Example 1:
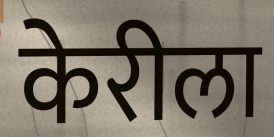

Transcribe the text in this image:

केरीला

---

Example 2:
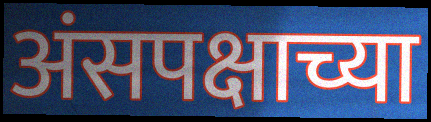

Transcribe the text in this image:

अंसपक्षाच्या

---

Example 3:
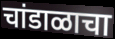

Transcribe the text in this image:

चांडाळाचा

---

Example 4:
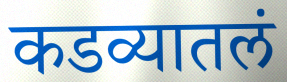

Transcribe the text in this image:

कडव्यातलं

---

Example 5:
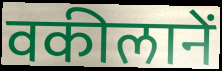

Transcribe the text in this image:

वकीलानें